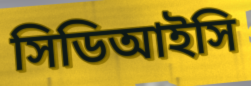
সিডিআইসি